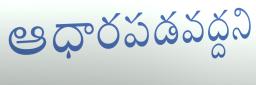
ఆధారపడవద్దని